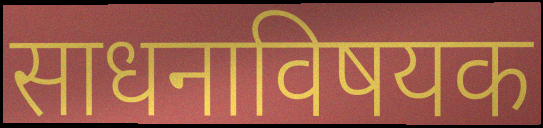
साधनाविषयक